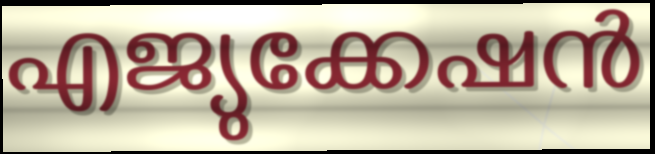
എജ്യുക്കേഷൻ